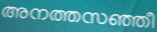
അനത്തസഞ്ഞീ